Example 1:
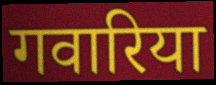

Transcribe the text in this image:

गवारिया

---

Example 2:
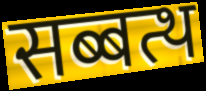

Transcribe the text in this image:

सब्बत्थ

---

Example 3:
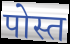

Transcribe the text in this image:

पोस्त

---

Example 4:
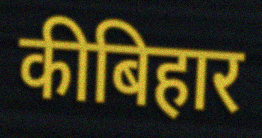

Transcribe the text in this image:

कीबिहार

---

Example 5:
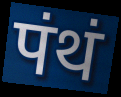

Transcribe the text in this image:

पंथं